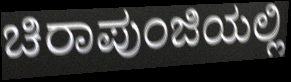
ಚಿರಾಪುಂಜಿಯಲ್ಲಿ